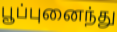
பூப்புனைந்து